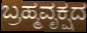
ಬ್ರಹ್ಮವೃಕ್ಷದ